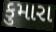
કુમારા